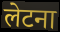
लेटना